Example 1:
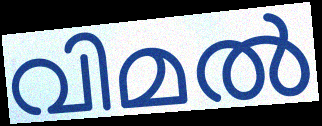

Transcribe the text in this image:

വിമൽ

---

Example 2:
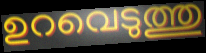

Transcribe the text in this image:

ഉറവെടുത്തു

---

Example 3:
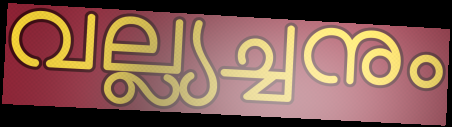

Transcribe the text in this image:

വല്ല്യച്ചനും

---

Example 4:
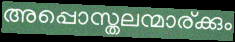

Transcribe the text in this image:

അപ്പൊസ്തലന്മാര്ക്കും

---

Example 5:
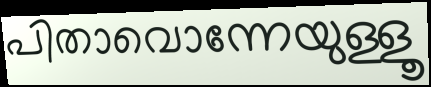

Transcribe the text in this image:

പിതാവൊന്നേയുള്ളൂ